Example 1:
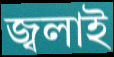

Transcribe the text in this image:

জ্বলাই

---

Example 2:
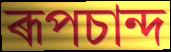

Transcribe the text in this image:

ৰূপচান্দ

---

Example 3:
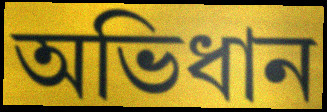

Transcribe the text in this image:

অভিধান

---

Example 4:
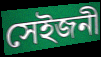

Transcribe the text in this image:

সেইজনী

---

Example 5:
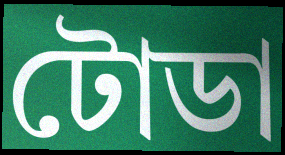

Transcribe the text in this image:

টোডা